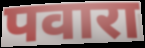
पवारा